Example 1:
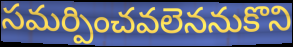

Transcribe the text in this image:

సమర్పించవలెననుకొని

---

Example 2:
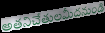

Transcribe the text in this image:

అతనిచేతులమీదనుండి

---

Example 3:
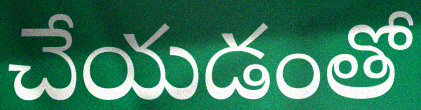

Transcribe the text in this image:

చేయడంతో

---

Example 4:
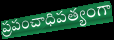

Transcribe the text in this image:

ప్రపంచాధిపత్యంగా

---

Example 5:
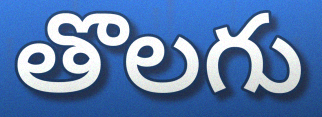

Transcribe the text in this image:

తొలగు